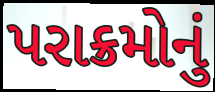
પરાક્રમોનું